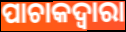
ପାଚାକଦ୍ଵାରା